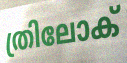
ത്രിലോക്